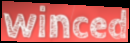
winced